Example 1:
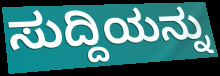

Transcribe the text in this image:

ಸುದ್ದಿಯನ್ನು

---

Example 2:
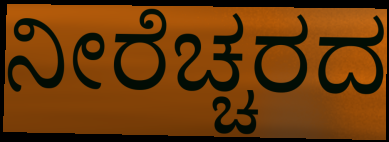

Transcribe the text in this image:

ನೀರೆಚ್ಚರದ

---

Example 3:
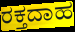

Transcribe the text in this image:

ರಕ್ತದಾಹ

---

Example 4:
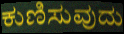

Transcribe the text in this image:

ಕುಣಿಸುವುದು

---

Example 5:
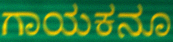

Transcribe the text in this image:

ಗಾಯಕನೂ